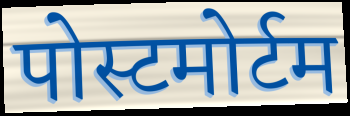
पोस्टमोर्टम